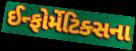
ઈન્ફોર્મેટિક્સના